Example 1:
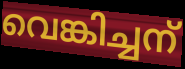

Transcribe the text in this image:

വെങ്കിച്ചന്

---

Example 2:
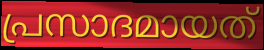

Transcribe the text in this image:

പ്രസാദമായത്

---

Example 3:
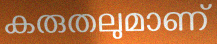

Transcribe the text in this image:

കരുതലുമാണ്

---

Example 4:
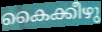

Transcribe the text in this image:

കൈക്കീഴു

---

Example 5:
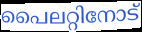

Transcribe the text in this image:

പൈലറ്റിനോട്